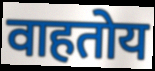
वाहतोय